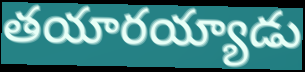
తయారయ్యాడు